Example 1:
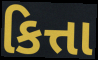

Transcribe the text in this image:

કિત્તા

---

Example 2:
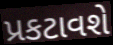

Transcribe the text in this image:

પ્રકટાવશે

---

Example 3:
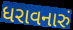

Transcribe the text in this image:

ધરાવનારું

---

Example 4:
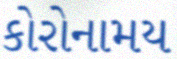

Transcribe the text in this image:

કોરોનામય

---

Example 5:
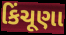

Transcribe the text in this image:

કિંચૂણા